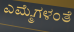
ಎಮ್ಮೆಗಳಂತೆ